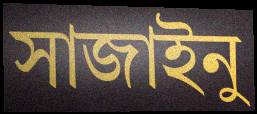
সাজাইনু